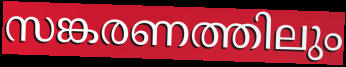
സങ്കരണത്തിലും